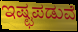
ಇಷ್ಟಪಡುವೆ